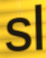
sl